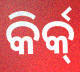
କିର୍କ୍